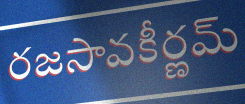
రజసావకీర్ణమ్